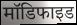
मॉडिफाइड